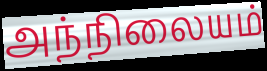
அந்நிலையம்